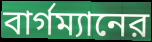
বার্গম্যানের